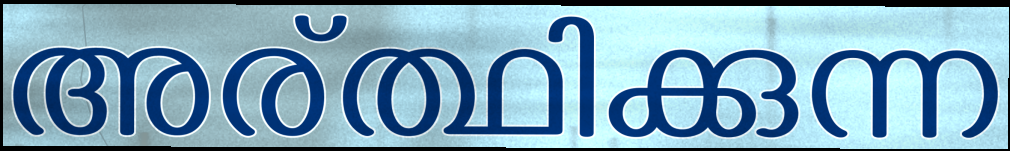
അര്ത്ഥിക്കുന്ന